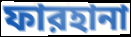
ফারহানা